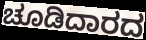
ಚೂಡಿದಾರದ